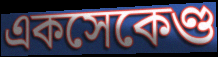
একসেকেণ্ড